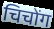
चिचोंग